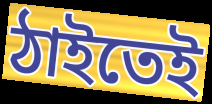
ঠাইতেই